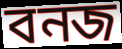
বনজ